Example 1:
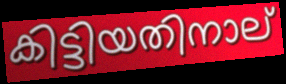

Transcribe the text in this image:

കിട്ടിയതിനാല്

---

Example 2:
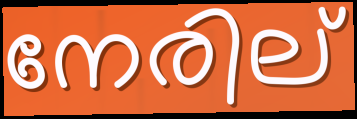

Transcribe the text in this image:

നേരില്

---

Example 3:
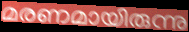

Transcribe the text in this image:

മരണമായിരുന്നു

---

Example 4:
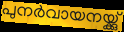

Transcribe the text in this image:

പുനർവായനയ്ക്കു്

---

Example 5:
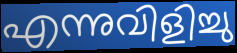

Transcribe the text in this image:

എന്നുവിളിച്ചു